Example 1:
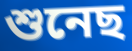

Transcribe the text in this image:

শুনেছ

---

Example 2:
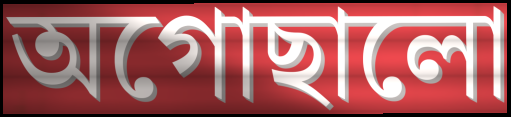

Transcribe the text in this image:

অগোছালো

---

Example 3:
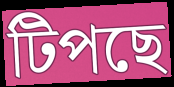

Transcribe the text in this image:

টিপছে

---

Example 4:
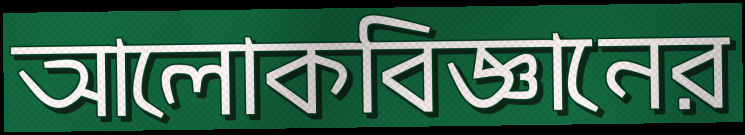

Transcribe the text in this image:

আলোকবিজ্ঞানের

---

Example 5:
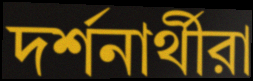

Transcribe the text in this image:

দর্শনার্থীরা